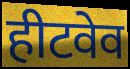
हीटवेव